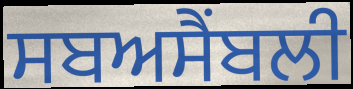
ਸਬਅਸੈਂਬਲੀ